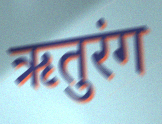
ऋतुरंग